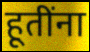
हूतींना